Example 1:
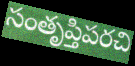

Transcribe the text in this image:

సంతృప్తిపరచి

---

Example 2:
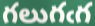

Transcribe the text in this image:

గలుగఁగ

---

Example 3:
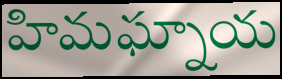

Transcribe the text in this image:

హిమఘ్నాయ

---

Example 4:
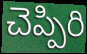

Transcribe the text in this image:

చెప్పిరి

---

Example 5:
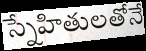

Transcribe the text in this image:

స్నేహితులతోనే